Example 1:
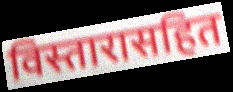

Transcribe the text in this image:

विस्तारासहित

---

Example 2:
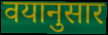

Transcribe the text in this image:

वयानुसार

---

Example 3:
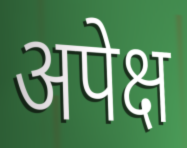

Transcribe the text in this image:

अपेक्ष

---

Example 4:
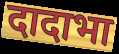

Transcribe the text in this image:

दादाभा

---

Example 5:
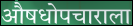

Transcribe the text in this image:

औषधोपचाराला